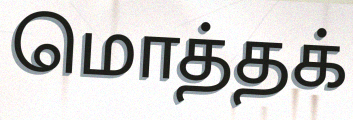
மொத்தக்